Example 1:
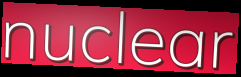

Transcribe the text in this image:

nuclear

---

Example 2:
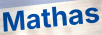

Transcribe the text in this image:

Mathas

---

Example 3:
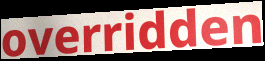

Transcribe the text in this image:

overridden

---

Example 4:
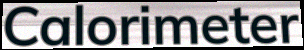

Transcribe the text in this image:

Calorimeter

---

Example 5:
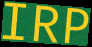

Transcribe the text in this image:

IRP